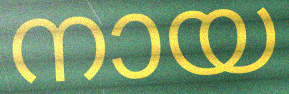
നായ